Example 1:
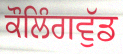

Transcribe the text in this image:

ਕੌਲਿੰਗਵੁੱਡ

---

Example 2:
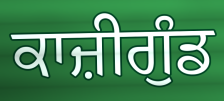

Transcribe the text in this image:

ਕਾਜ਼ੀਗੁੰਡ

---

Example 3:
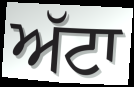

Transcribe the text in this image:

ਅੱਟਾ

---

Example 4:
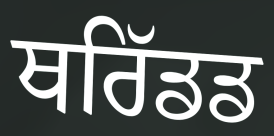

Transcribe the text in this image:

ਥਰਿੱਡਡ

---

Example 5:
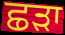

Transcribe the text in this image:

ਛਡ਼ਾ